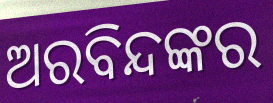
ଅରବିନ୍ଦଙ୍କର